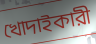
খোদাইকারী